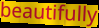
beautifully